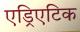
एड्रिएटिक